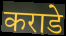
कराडे